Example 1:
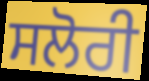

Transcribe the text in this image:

ਸਲੋਰੀ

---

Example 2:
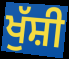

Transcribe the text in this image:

ਖੁੱਸ਼ੀ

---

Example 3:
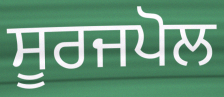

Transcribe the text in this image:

ਸੂਰਜਪੋਲ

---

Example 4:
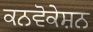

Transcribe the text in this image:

ਕਨਵੋਕੇਸ਼ਨ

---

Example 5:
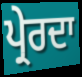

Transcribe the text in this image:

ਪ੍ਰੇਰਦਾ